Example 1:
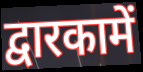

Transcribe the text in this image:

द्वारकामें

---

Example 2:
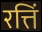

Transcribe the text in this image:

रत्तिं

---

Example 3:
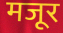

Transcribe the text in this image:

मजूर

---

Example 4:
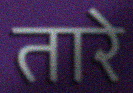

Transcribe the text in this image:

तारे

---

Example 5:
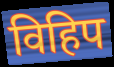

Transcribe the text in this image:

विहिप